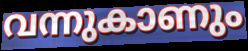
വന്നുകാണും